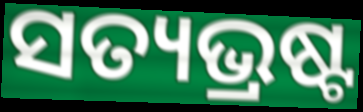
ସତ୍ୟଭ୍ରଷ୍ଟ